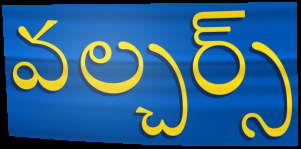
వల్చర్స్